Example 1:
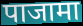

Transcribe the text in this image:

पाजामा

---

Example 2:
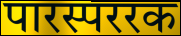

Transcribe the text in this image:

पारस्पररक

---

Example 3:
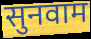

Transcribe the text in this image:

सुनवाम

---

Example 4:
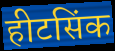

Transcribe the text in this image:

हीटसिंक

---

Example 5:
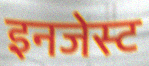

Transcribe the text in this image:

इनजेस्ट